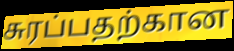
சுரப்பதற்கான